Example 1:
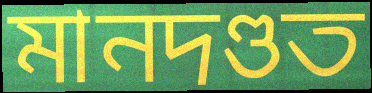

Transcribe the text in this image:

মানদণ্ডত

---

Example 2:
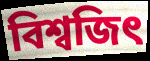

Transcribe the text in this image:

বিশ্বজিৎ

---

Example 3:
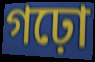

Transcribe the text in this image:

গঢ়ো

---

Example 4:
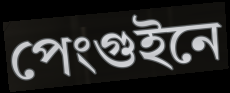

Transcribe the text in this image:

পেংগুইনে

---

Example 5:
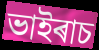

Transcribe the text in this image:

ভাইৰাচ